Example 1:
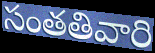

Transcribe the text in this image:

సంతతివారి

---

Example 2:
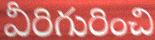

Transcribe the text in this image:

వీరిగురించి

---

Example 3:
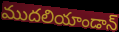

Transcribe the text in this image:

ముదలియాండాన్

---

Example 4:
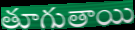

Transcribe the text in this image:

తూగుతాయి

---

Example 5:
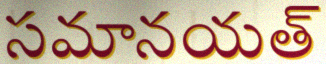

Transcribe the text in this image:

సమానయత్